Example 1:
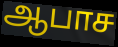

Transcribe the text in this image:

ஆபாச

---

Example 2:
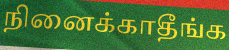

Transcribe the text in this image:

நினைக்காதீங்க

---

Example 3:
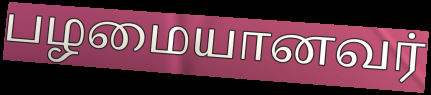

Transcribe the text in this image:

பழமையானவர்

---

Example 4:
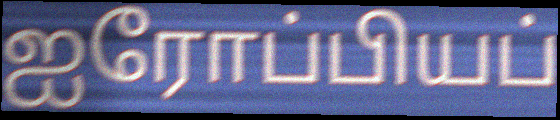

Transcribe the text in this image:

ஐரோப்பியப்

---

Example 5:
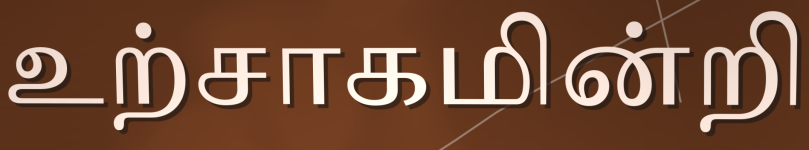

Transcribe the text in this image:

உற்சாகமின்றி